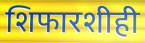
शिफारशीही